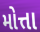
મોત્તા